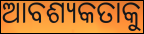
ଆବଶ୍ୟକତାକୁ